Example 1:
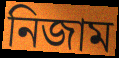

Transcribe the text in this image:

নিজাম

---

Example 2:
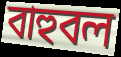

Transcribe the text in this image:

বাহুবল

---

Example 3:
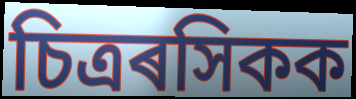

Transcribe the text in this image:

চিত্ৰৰসিকক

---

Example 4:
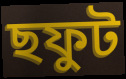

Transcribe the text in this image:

ছফুট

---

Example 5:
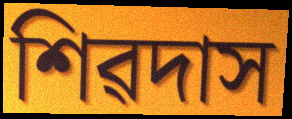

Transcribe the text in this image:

শিৱদাস